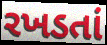
રખડતાં